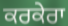
ਕਰਕੇਰਾ